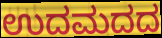
ಉದಮದದ